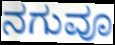
ನಗುವೂ